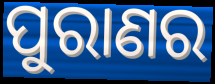
ପୁରାଣର